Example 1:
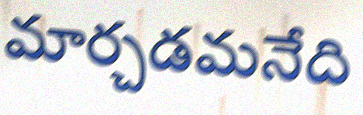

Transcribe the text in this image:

మార్చడమనేది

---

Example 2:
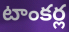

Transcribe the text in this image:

టాంకర్ల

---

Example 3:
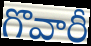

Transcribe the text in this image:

గొవారీ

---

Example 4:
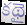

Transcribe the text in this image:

కథై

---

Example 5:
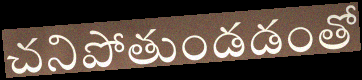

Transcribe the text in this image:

చనిపోతుండడంతో